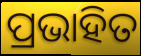
ପ୍ରଭାହିତ